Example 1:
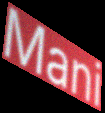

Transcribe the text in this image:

Mani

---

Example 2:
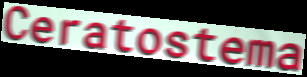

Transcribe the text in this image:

Ceratostema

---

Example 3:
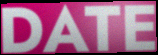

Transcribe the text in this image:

DATE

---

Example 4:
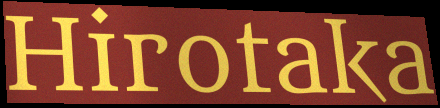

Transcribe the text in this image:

Hirotaka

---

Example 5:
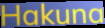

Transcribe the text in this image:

Hakuna